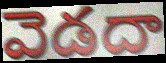
వెడదా